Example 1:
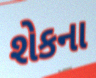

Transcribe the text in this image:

શેકના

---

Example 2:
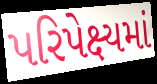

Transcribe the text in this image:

પરિપેક્ષ્યમાં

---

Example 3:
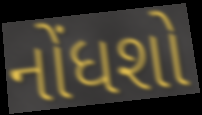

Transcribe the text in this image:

નોંધશો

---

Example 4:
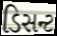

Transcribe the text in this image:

ડિસન્ટ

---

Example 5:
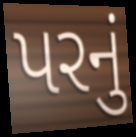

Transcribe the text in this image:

પરનું